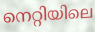
നെറ്റിയിലെ